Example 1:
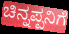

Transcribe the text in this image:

ಚಿನ್ನಪ್ಪನಿಗೆ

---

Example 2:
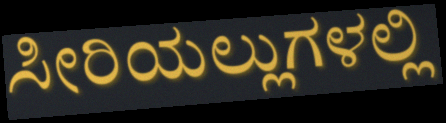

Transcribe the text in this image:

ಸೀರಿಯಲ್ಲುಗಳಲ್ಲಿ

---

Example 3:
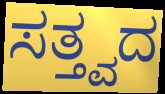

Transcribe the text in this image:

ಸತ್ತ್ವದ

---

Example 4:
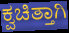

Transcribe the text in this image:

ಕ್ವಚಿತ್ತಾಗಿ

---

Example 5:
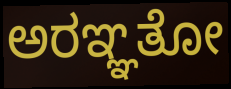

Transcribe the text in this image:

ಅರಞ್ಞತೋ